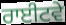
ਰਾਈਟਵੇ